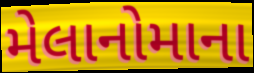
મેલાનોમાના